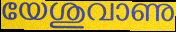
യേശുവാണു